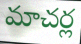
మాచర్ల